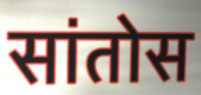
सांतोस